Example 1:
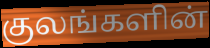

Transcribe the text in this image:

குலங்களின்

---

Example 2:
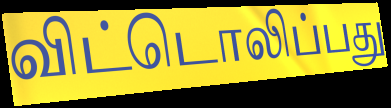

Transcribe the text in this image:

விட்டொலிப்பது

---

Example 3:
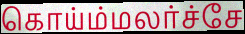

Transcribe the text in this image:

கொய்ம்மலர்ச்சே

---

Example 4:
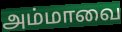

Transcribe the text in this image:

அம்மாவை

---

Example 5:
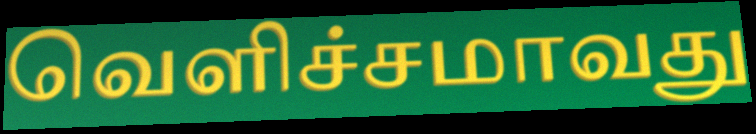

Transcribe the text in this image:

வெளிச்சமாவது